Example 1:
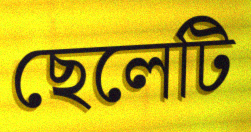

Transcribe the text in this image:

ছেলেটি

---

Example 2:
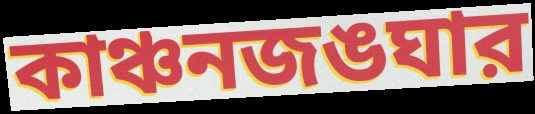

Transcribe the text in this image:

কাঞ্চনজঙঘার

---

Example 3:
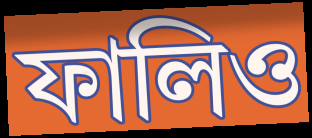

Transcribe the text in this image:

ফালিও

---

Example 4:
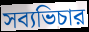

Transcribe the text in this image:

সব্যভিচার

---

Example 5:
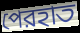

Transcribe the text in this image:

পেরহাত